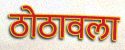
ठोठावला